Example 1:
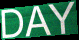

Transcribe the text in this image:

DAY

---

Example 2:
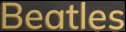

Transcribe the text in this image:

Beatles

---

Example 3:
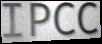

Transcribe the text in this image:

IPCC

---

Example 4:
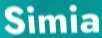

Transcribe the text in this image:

Simia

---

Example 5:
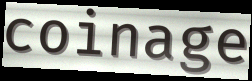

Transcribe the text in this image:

coinage